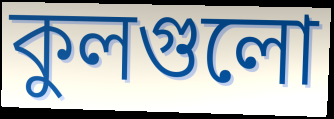
কুলগুলো